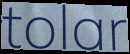
tolar